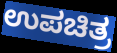
ಉಪಚಿತ್ರ